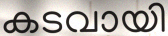
കടവായി